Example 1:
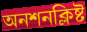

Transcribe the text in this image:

অনশনক্লিষ্ট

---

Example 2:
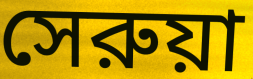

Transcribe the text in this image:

সেরুয়া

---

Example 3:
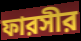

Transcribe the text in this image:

ফারসীর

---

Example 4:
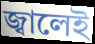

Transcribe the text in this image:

জ্বালেই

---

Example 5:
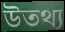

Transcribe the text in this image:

উতথ্য